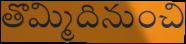
తొమ్మిదినుంచి